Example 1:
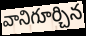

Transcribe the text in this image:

వానిగూర్చిన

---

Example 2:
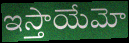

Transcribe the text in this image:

ఇస్తాయేమో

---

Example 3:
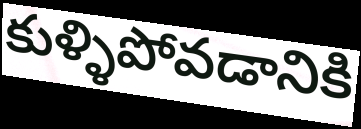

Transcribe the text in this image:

కుళ్ళిపోవడానికి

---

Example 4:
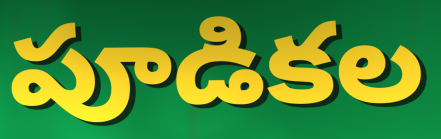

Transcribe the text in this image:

పూడికల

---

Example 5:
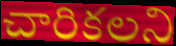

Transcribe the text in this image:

చారికలని